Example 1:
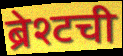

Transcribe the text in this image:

ब्रेश्टची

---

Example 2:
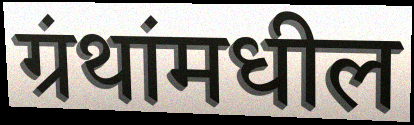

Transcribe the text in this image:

ग्रंथांमधील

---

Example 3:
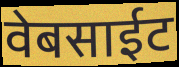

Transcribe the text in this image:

वेबसाईट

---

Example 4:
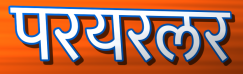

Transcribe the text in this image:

परयरलर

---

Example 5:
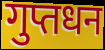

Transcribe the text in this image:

गुप्तधन